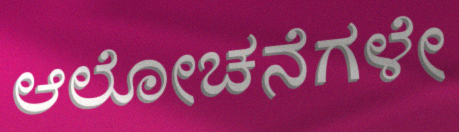
ಆಲೋಚನೆಗಳೇ